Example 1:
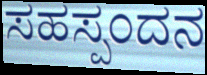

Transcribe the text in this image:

ಸಹಸ್ಪಂದನ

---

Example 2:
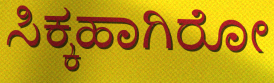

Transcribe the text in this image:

ಸಿಕ್ಕಹಾಗಿರೋ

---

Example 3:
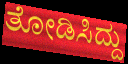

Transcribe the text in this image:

ತೋಡಿಸಿದ್ದು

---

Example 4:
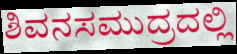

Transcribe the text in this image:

ಶಿವನಸಮುದ್ರದಲ್ಲಿ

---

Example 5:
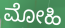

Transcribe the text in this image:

ಮೋಹಿ